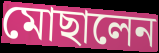
মোছালেন